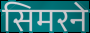
सिमरने